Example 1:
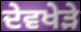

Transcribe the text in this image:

ਦੇਵਖੇੜੇ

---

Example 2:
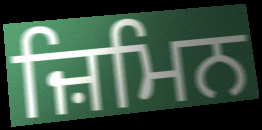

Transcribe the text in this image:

ਜ਼ਿਮਿਨ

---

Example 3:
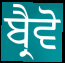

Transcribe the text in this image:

ਬ੍ਰੈਵੋ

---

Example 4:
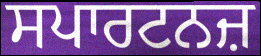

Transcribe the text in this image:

ਸਪਾਰਟਨਜ਼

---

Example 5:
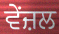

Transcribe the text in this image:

ਵੇਂਜ਼ਲ